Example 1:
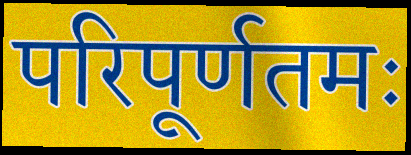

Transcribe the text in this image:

परिपूर्णतमः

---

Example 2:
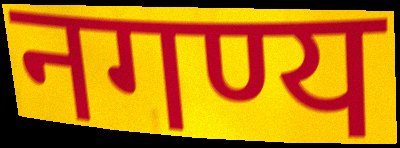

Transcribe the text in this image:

नगण्य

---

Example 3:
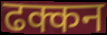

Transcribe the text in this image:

ढक्कन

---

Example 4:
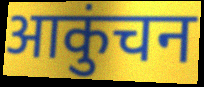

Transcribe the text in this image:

आकुंचन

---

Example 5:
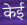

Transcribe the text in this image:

केई